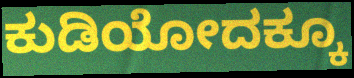
ಕುಡಿಯೋದಕ್ಕೂ